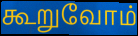
கூறுவோம்